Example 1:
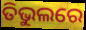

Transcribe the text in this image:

ତିଭୁଲରେ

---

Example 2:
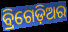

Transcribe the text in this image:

ବ୍ରିଗେଡ଼ିଅର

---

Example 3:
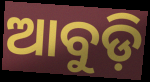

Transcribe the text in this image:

ଆବୁଡ଼ି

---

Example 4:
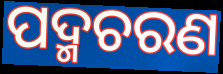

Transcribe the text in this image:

ପଦ୍ମଚରଣ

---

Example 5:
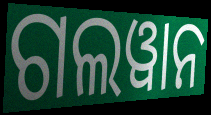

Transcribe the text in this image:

ଗଲୱାନ